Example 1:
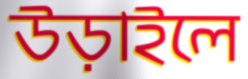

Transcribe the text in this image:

উড়াইলে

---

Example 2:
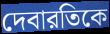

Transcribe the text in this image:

দেবারতিকে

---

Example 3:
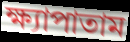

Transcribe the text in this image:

ক্ষ্যাপাতাম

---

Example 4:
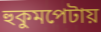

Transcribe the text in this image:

হুকুমপেটায়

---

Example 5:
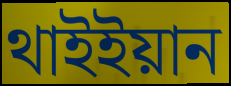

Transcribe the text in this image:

থাইইয়ান